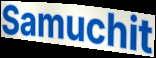
Samuchit